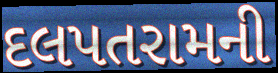
દલપતરામની